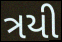
ત્રયી